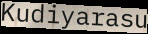
Kudiyarasu